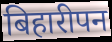
बिहारीपन